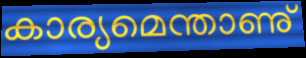
കാര്യമെന്താണു്